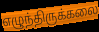
எழுந்திருக்கலை